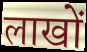
लाखों